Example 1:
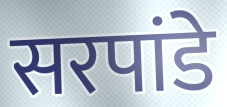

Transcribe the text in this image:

सरपांडे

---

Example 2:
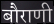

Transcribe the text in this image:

बौराणी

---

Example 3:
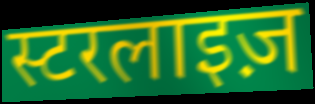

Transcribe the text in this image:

स्टरलाइज़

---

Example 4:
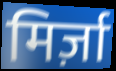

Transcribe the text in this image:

मिर्ज़ा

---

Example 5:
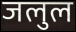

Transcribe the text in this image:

जलुल